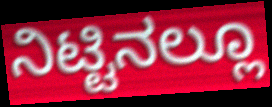
ನಿಟ್ಟಿನಲ್ಲೂ